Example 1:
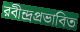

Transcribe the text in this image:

রবীন্দ্রপ্রভাবিত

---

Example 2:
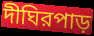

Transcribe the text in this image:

দীঘিরপাড়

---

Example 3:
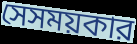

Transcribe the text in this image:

সেসময়কার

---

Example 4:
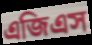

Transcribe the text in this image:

এজিএস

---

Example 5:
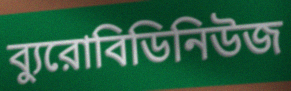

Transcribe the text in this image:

ব্যুরোবিডিনিউজ